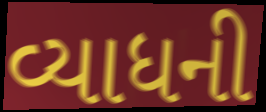
વ્યાધની